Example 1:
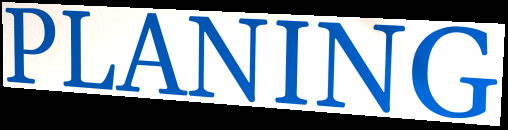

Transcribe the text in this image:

PLANING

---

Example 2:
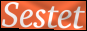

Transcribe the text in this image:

Sestet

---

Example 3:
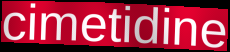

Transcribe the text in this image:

cimetidine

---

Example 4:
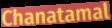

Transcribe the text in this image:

Chanatamal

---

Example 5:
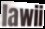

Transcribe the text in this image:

lawii